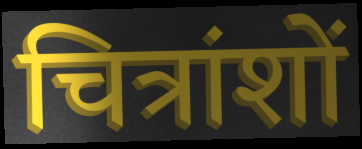
चित्रांशों